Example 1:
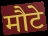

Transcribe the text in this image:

मौटे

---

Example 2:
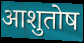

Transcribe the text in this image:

आशुतोष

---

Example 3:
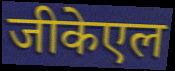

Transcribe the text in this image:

जीकेएल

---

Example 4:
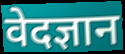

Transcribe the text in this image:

वेदज्ञान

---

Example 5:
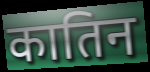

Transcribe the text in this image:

कातिन